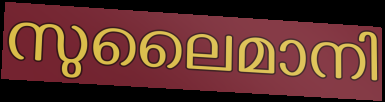
സുലൈമാനി